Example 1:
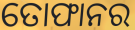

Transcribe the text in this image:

ତୋଫାନର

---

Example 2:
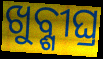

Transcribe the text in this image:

ଖୁବ୍ଶୀଘ୍ର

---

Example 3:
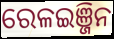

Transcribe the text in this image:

ରେଳଇଞ୍ଜିନ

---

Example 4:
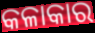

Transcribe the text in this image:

କଳାକାର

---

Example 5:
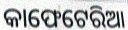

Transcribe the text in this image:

କାଫେଟେରିଆ